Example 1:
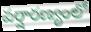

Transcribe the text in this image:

వర్షారణ్యంలో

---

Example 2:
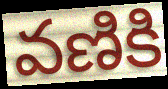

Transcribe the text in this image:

వణికి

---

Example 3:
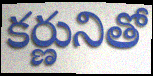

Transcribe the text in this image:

కర్ణునితో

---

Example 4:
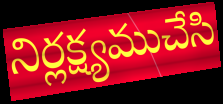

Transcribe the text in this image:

నిర్లక్ష్యముచేసి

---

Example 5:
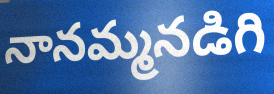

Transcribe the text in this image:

నానమ్మనడిగి